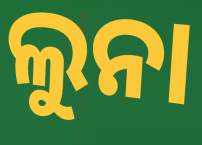
ଲୁନା